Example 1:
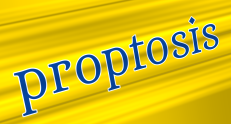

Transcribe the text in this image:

proptosis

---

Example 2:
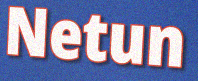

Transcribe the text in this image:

Netun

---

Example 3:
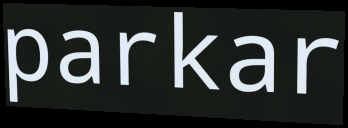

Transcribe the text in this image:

parkar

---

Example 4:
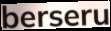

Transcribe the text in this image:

berseru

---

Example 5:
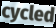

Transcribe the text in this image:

cycled